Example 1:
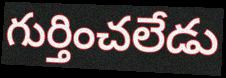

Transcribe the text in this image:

గుర్తించలేడు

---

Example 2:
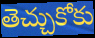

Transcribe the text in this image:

తెచ్చుకోకు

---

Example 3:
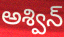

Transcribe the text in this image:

అశ్విన్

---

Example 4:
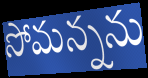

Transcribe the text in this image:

సోమన్నను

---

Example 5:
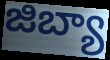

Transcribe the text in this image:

జిబ్యా